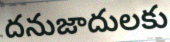
దనుజాదులకు